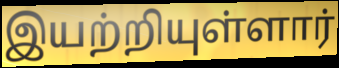
இயற்றியுள்ளார்